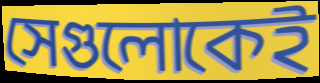
সেগুলোকেই